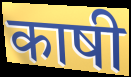
काषी